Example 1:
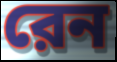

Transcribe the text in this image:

রেন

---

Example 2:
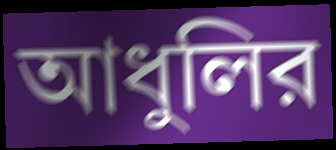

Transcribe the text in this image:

আধুলির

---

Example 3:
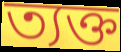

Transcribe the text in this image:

ত্যক্ত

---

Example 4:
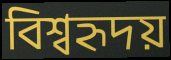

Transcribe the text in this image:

বিশ্বহৃদয়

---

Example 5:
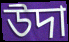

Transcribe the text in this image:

উদা